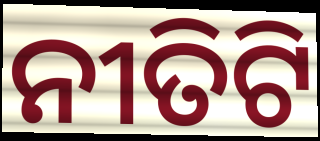
ନୀତିଟି